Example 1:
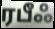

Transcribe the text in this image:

ரபீஃ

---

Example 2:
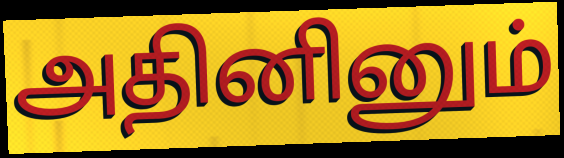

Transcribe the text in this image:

அதினினும்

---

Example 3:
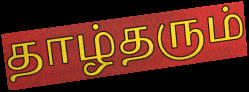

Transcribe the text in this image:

தாழ்தரும்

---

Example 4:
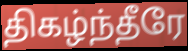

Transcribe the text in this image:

திகழ்ந்தீரே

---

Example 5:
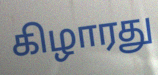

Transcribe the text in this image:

கிழாரது